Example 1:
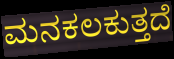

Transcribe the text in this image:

ಮನಕಲಕುತ್ತದೆ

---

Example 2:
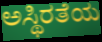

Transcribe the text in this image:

ಅಸ್ಥಿರತೆಯ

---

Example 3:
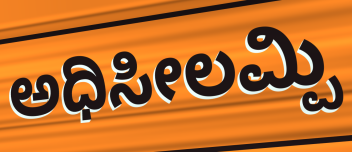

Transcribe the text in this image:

ಅಧಿಸೀಲಮ್ಪಿ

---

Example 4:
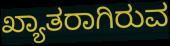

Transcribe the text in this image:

ಖ್ಯಾತರಾಗಿರುವ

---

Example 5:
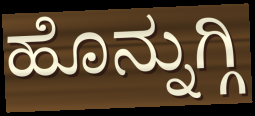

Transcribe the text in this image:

ಹೊನ್ನುಗ್ಗಿ